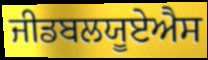
ਜੀਡਬਲਯੂਏਐਸ